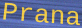
Prana